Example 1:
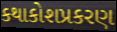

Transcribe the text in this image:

કથાકોશપ્રકરણ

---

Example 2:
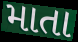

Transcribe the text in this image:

માતા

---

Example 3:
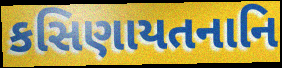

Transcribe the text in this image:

કસિણાયતનાનિ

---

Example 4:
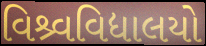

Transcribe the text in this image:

વિશ્ર્વવિદ્યાલયો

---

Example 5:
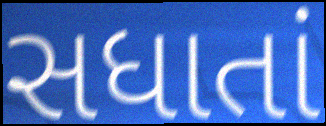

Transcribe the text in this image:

સધાતાં